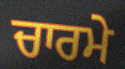
ਚਾਰਮੇ